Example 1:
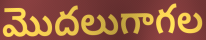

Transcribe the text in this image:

మొదలుగాగల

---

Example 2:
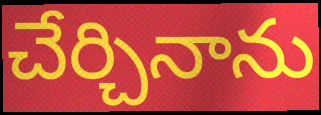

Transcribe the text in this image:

చేర్చినాను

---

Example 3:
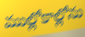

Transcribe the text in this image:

ముల్లోకాల్లోను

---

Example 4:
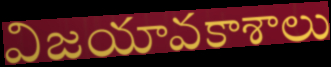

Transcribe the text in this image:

విజయావకాశాలు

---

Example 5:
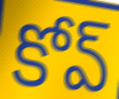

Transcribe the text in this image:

కోవ్